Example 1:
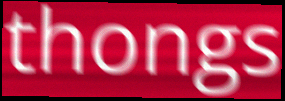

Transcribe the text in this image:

thongs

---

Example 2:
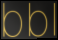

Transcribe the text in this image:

bbl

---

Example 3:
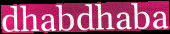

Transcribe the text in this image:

dhabdhaba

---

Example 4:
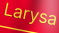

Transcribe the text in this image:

Larysa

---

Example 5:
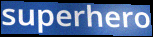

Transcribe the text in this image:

superhero